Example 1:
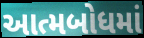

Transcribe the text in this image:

આત્મબોધમાં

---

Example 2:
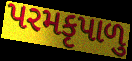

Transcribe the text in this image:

પરમકૃપાળુ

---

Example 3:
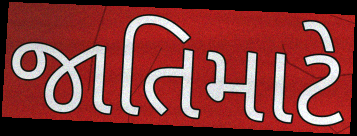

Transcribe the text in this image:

જાતિમાટે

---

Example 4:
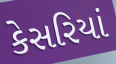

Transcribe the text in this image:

કેસરિયાં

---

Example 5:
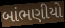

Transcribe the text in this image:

બાંભણીયો